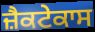
ਜ਼ੈਕਟੇਕਾਸ